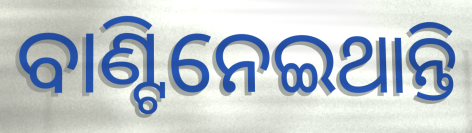
ବାଣ୍ଟିନେଇଥାନ୍ତି